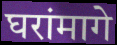
घरांमागे